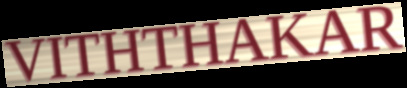
VITHTHAKAR